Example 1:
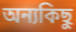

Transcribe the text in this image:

অন্যকিছু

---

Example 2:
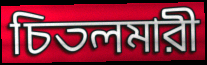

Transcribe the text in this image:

চিতলমারী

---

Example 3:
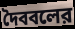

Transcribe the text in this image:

দৈববলের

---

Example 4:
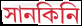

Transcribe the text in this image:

সানকিনি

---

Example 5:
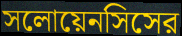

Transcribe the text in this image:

সলোয়েনসিসের